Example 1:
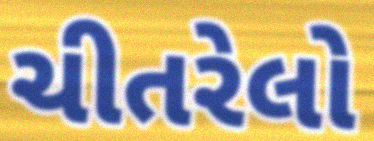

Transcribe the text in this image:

ચીતરેલો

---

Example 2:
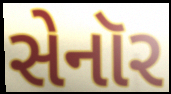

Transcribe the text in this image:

સેનૉર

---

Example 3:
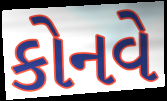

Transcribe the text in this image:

કોનવે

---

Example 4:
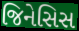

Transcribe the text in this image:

જિનેસિસ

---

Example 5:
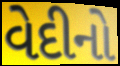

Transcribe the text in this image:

વેદીનો